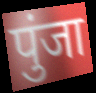
पुंजा